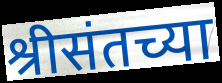
श्रीसंतच्या